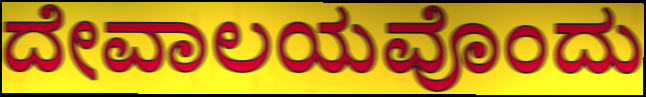
ದೇವಾಲಯವೊಂದು